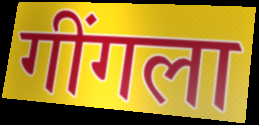
गींगला